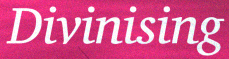
Divinising